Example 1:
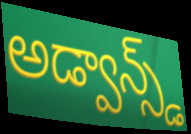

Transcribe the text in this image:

అడ్వాన్స్డ్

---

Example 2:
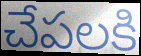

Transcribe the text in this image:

చేపలకి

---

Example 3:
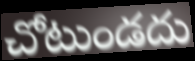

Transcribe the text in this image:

చోటుండదు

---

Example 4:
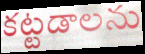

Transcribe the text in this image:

కట్టడాలను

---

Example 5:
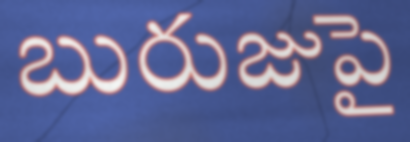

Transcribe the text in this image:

బురుజుపై